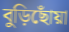
বুড়িছোঁয়া